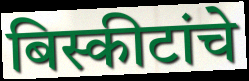
बिस्कीटांचे